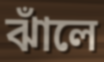
ঝাঁলে